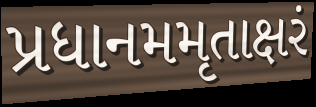
પ્રધાનમમૃતાક્ષરં